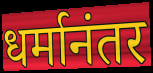
धर्मानंतर